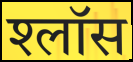
श्लॉस